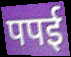
पपई